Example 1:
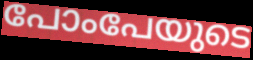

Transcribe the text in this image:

പോംപേയുടെ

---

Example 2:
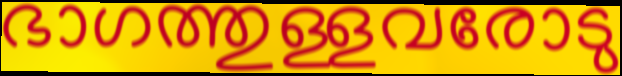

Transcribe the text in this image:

ഭാഗത്തുള്ളവരോടു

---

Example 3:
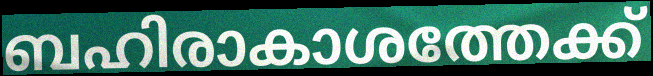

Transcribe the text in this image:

ബഹിരാകാശത്തേക്ക്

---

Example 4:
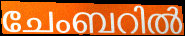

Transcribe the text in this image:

ചേംബറിൽ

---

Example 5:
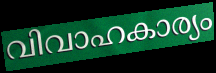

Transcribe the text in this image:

വിവാഹകാര്യം